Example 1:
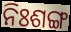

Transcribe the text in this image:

ନିଃଶଙ୍ଗ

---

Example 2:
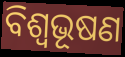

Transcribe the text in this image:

ବିଶ୍ୱଭୂଷଣ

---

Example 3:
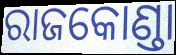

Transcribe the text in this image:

ରାଜକୋଣ୍ଡା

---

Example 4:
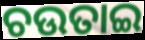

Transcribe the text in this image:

ଚଉତାଇ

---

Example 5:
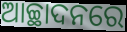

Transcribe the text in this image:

ଆଚ୍ଛାଦନରେ